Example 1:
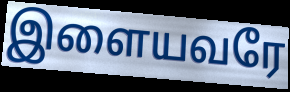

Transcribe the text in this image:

இளையவரே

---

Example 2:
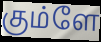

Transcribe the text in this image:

கும்ளே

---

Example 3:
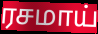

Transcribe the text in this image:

ரசமாய்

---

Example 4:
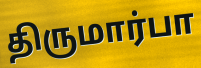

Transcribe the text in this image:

திருமார்பா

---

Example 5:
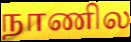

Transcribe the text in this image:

நாணில